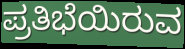
ಪ್ರತಿಭೆಯಿರುವ